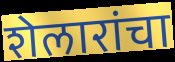
शेलारांचा